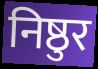
निष्ठुर